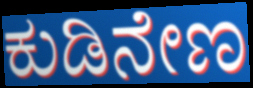
ಕುಡಿನೇಣ